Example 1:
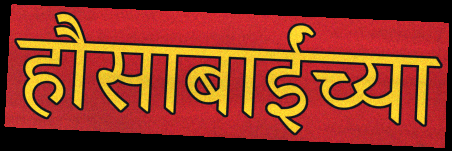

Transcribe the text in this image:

हौसाबाईंच्या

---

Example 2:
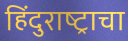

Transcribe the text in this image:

हिंदुराष्ट्राचा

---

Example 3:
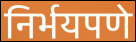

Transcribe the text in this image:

निर्भयपणे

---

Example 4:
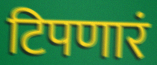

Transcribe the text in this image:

टिपणारं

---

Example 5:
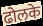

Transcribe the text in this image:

ढोलके